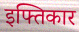
इफ्तिकार